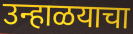
उन्हाळयाचा